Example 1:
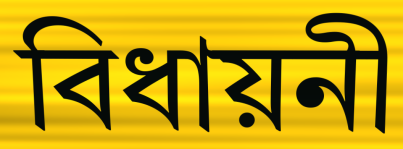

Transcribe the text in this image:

বিধায়নী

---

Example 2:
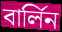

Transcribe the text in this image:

বার্লিন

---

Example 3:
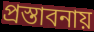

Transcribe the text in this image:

প্রস্তাবনায়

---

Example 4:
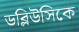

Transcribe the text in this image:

ডব্লিউসিকে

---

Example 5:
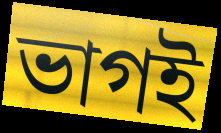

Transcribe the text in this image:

ভাগই